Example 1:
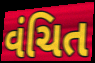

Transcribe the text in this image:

વંચિત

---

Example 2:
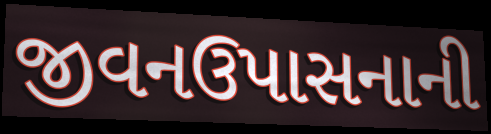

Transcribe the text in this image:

જીવનઉપાસનાની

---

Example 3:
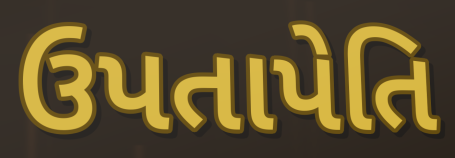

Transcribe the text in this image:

ઉપતાપેતિ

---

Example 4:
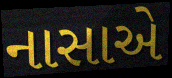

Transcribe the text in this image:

નાસાએ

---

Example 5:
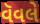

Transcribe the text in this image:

વૅવલે